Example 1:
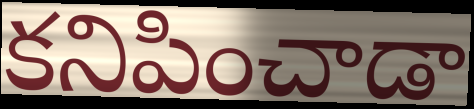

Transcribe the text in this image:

కనిపించాడా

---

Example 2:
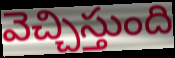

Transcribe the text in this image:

వెచ్చిస్తుంది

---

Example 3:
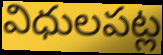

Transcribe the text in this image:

విధులపట్ల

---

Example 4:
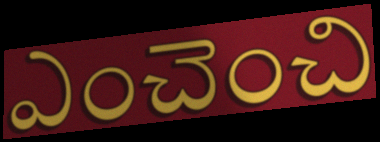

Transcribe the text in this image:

ఎంచెంచి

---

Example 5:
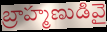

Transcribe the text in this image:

బ్రాహ్మణుడివై